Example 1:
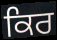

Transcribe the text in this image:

ਕਿਰ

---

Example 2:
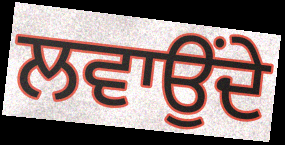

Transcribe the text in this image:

ਲਵਾਉਂਦੇ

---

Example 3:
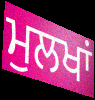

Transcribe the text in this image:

ਮੁਲਖਾਂ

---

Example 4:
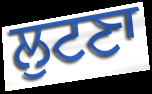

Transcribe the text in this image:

ਲੁਟਣਾ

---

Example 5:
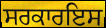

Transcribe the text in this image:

ਸਰਕਾਰਇਸ